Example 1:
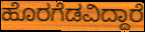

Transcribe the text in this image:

ಹೊರಗೆಡವಿದ್ದಾರೆ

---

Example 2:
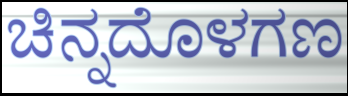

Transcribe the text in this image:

ಚಿನ್ನದೊಳಗಣ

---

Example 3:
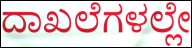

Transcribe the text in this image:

ದಾಖಲೆಗಳಲ್ಲೇ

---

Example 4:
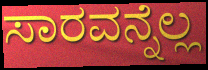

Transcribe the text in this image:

ಸಾರವನ್ನೆಲ್ಲ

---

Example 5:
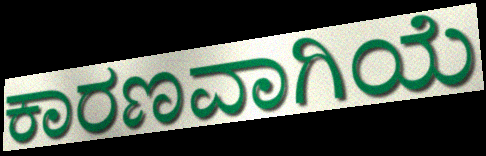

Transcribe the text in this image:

ಕಾರಣವಾಗಿಯೆ